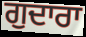
ਗੁਦਾਰਾ